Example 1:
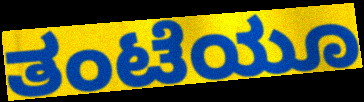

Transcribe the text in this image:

ತಂಟೆಯೂ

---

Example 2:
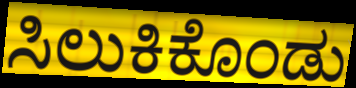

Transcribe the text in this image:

ಸಿಲುಕಿಕೊಂಡು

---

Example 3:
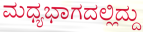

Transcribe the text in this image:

ಮಧ್ಯಭಾಗದಲ್ಲಿದ್ದು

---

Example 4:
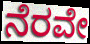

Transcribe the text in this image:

ನೆರವೇ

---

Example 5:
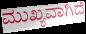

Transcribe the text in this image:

ಮುಖ್ಯವಾಗಿದೆ